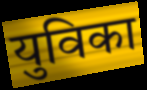
युविका